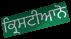
ਕ੍ਰਿਸਟੀਆਨੋ